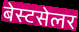
बेस्टसेलर